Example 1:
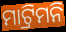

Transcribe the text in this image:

ମାଟ୍ରିମନି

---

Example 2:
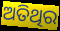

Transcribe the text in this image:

ଅତିଥିର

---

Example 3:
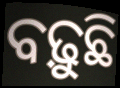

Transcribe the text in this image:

ବଢ଼ୁଛି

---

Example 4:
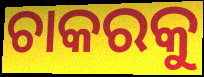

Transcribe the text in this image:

ଚାକରକୁ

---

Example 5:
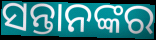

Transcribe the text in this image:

ସନ୍ତାନଙ୍କର